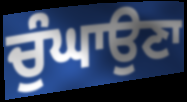
ਚੁੰਘਾਉਣਾ